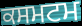
ਕਸਮਟਮ